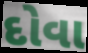
દોવા